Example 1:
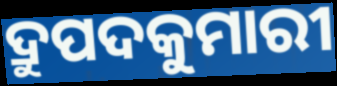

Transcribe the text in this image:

ଦ୍ରୁପଦକୁମାରୀ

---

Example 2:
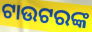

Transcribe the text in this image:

ଟାଉଟରଙ୍କ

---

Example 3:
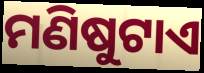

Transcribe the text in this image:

ମଣିଷୁଟାଏ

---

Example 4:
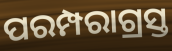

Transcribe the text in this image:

ପରମ୍ପରାଗ୍ରସ୍ତ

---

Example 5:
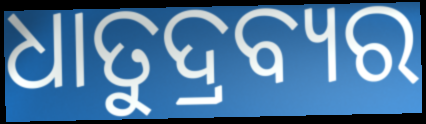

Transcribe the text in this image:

ଧାତୁଦ୍ରବ୍ୟର